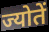
ज्योतें